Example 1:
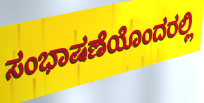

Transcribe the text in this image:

ಸಂಭಾಷಣೆಯೊಂದರಲ್ಲಿ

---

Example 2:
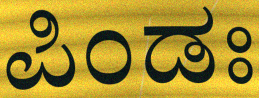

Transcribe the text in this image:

ಪಿಂಡಃ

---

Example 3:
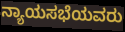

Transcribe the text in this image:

ನ್ಯಾಯಸಭೆಯವರು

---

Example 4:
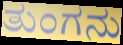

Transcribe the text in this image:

ತುಂಗನು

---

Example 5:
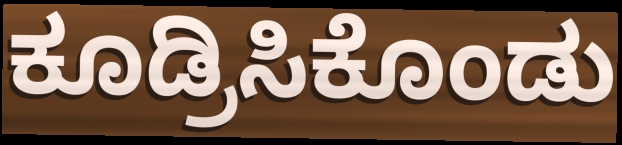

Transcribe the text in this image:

ಕೂಡ್ರಿಸಿಕೊಂಡು